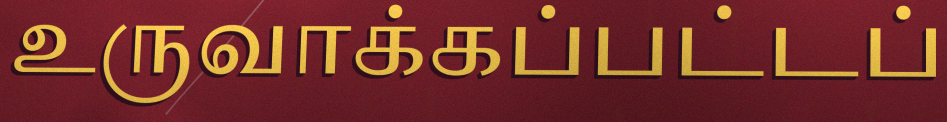
உருவாக்கப்பட்டப்